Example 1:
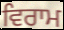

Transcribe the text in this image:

ਵਿਰਾਮ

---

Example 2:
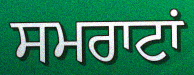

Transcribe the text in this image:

ਸਮਰਾਟਾਂ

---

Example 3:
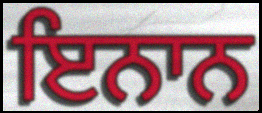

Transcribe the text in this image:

ਇਨਾਨ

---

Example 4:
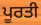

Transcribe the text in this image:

ਪੂਰਤੀ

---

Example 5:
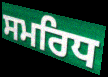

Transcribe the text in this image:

ਸਮਰਿਧ